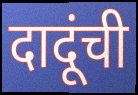
दादूंची